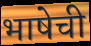
भाषेची